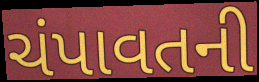
ચંપાવતની